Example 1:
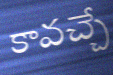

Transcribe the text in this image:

కావచ్చే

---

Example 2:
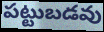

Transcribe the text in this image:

పట్టుబడవు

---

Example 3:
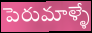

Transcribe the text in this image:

పెరుమాళ్ళే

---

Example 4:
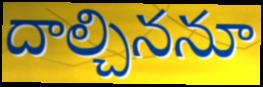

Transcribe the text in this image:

దాల్చిననూ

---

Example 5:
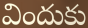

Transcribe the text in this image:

విందుకు